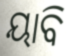
ୟାବି